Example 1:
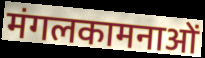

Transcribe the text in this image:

मंगलकामनाओं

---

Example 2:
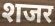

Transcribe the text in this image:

शजर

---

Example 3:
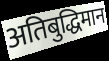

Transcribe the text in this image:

अतिबुद्धिमान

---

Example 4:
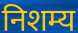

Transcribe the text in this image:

निशम्य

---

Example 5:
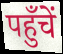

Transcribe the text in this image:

पहुँचें